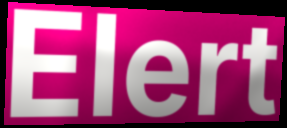
Elert